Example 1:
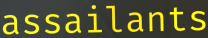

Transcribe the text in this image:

assailants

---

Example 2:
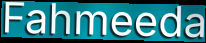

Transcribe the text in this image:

Fahmeeda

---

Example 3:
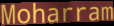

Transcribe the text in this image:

Moharram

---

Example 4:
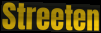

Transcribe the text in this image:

Streeten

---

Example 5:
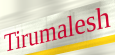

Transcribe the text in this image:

Tirumalesh